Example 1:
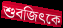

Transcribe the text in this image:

শুবজিৎকে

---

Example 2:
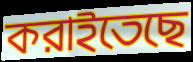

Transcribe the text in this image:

করাইতেছে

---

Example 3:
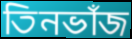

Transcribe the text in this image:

তিনভাঁজ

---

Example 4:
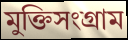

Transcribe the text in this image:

মুক্তিসংগ্রাম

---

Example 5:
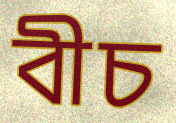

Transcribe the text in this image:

বীচ